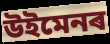
উইমেনৰ